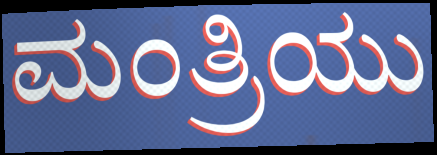
ಮಂತ್ರಿಯು